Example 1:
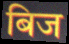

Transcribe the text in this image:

बिज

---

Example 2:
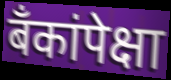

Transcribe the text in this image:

बँकांपेक्षा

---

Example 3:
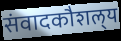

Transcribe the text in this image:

संवादकौशल्य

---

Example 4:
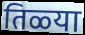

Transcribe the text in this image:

तिळ्या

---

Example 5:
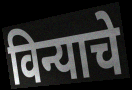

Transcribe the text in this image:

विन्याचे